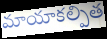
మాయాకల్పిత